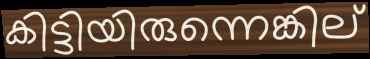
കിട്ടിയിരുന്നെങ്കില്